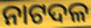
ନାଟଦଳ